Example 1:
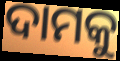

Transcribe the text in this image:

ଦାମକୁ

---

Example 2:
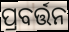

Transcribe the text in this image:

ପ୍ରବର୍ତ୍ତନ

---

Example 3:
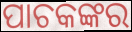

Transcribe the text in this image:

ପାଚକଙ୍କର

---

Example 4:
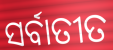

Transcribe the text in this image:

ସର୍ବାତୀତ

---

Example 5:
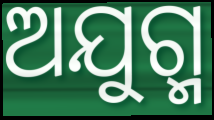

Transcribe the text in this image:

ଅଯୁଗ୍ମ